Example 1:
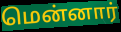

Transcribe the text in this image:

மென்னார்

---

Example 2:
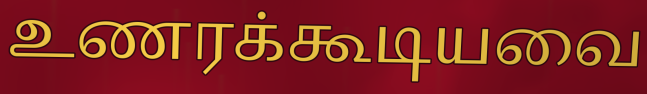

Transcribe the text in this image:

உணரக்கூடியவை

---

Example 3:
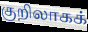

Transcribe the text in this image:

குறிலாகக்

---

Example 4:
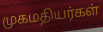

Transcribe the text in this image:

முகமதியர்கள்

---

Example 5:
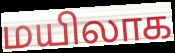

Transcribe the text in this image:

மயிலாக